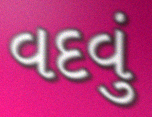
વદવું